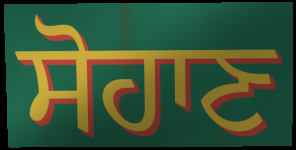
ਸੋਹਾਣ